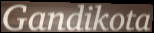
Gandikota